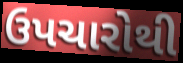
ઉપચારોથી